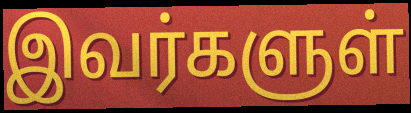
இவர்களுள்